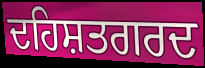
ਦਹਿਸ਼ਤਗਰਦ